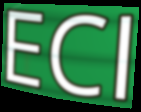
ECI